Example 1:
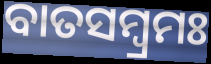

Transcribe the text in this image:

ବାତସମ୍ବ୍ରମଃ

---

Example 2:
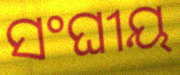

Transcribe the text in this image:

ସଂଘୀୟ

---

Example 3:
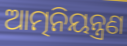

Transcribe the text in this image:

ଆତ୍ମନିୟନ୍ତ୍ରଣ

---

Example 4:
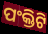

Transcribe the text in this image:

ପଂକ୍ତିଟି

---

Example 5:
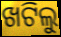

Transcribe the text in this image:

ଖଟିଲୁ